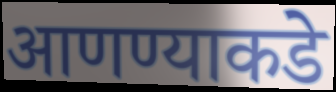
आणण्याकडे